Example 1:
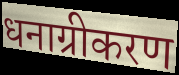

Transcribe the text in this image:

धनाग्रीकरण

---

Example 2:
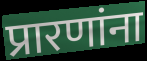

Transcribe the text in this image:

प्रारणांना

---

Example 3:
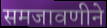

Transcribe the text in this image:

समजावणीने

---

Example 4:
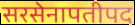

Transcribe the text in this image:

सरसेनापतीपद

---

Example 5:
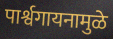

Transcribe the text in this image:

पार्श्वगायनामुळे